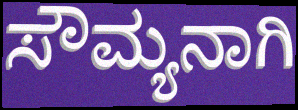
ಸೌಮ್ಯನಾಗಿ